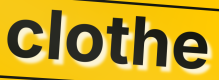
clothe